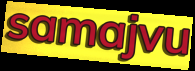
samajvu